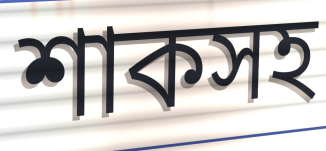
শাকসহ